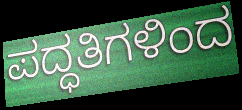
ಪದ್ಧತಿಗಳಿಂದ